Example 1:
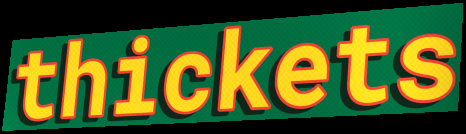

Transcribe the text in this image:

thickets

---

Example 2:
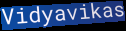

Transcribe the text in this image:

Vidyavikas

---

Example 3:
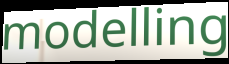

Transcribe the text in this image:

modelling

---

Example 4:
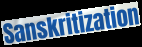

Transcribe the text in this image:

Sanskritization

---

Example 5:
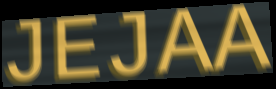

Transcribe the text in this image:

JEJAA